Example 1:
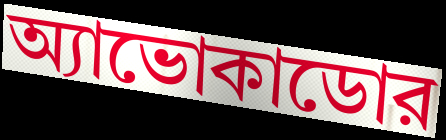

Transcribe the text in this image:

অ্যাভোকাডোর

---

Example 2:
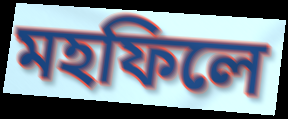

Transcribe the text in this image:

মহফিলে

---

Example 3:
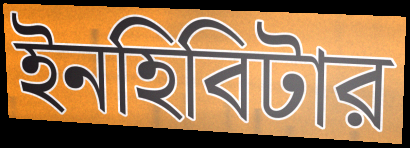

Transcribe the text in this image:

ইনহিবিটার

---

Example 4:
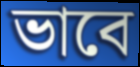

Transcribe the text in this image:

ভাবে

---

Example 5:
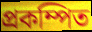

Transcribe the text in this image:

প্রকম্পিত